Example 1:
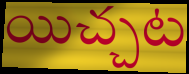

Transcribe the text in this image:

యిచ్చట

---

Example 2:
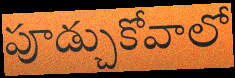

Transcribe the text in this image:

పూడ్చుకోవాలో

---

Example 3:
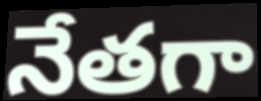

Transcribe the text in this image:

నేతగా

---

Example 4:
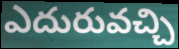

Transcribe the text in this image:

ఎదురువచ్చి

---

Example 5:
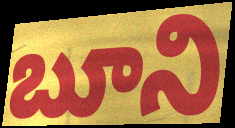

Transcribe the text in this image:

బూని